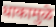
धाकामुळे